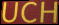
UCH